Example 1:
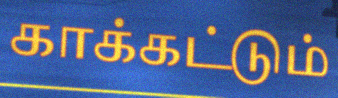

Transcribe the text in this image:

காக்கட்டும்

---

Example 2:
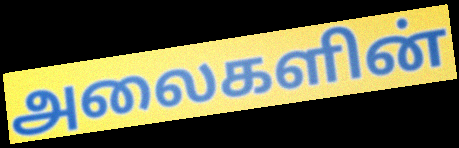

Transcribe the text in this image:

அலைகளின்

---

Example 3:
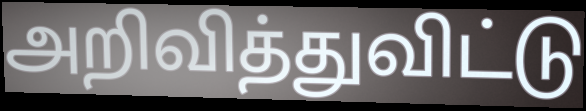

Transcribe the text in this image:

அறிவித்துவிட்டு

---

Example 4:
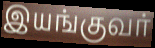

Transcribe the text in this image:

இயங்குவர்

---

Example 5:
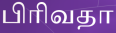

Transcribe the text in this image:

பிரிவதா